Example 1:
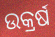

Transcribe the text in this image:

ଉକ୍ରର୍ଷ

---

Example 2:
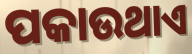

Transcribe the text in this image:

ପକାଉଥାଏ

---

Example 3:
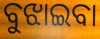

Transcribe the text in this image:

ବୁଝାଇବା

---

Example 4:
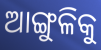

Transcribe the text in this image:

ଆଙ୍ଗୁଳିକୁ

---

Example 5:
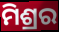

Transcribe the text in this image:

ମିଶ୍ରର